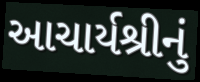
આચાર્યશ્રીનું